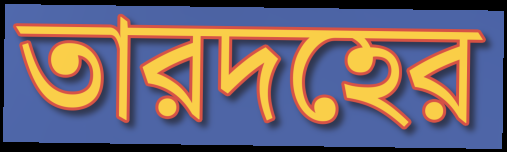
তারদহের